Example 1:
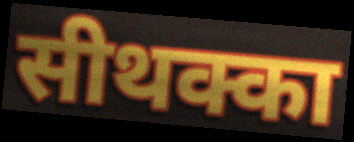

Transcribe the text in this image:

सीथक्का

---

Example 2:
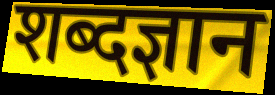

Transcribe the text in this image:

शब्दज्ञान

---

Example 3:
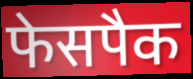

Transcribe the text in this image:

फेसपैक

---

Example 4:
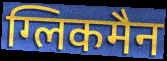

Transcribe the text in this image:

ग्लिकमैन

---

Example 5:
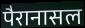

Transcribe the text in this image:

पैरानासल